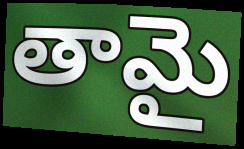
తామై